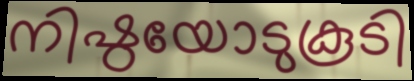
നിഷ്ഠയോടുകൂടി